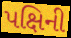
પક્ષિની